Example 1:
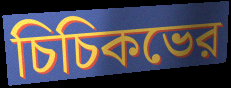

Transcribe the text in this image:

চিচিকভের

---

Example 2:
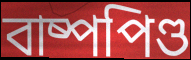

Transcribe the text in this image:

বাষ্পপিণ্ড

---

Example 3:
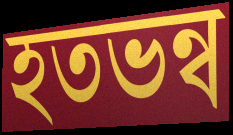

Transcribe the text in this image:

হতভন্ব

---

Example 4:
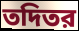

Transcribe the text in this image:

তদিতর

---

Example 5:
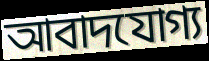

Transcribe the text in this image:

আবাদযোগ্য